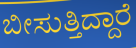
ಬೀಸುತ್ತಿದ್ದಾರೆ